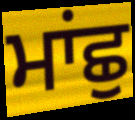
ਮਾਂਛੁ